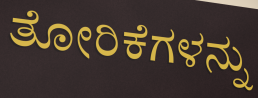
ತೋರಿಕೆಗಳನ್ನು